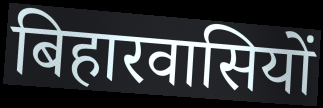
बिहारवासियों